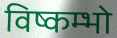
विष्कम्भो